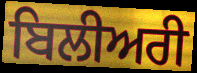
ਬਿਲੀਅਰੀ